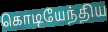
கொடியேந்திய